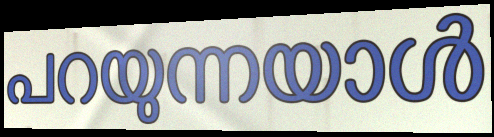
പറയുന്നയാൾ